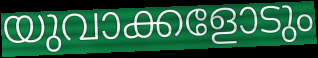
യുവാക്കളോടും